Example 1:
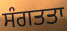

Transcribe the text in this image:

ਸੰਗਤਤਾ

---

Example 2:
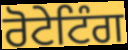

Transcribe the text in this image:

ਰੋਟੇਟਿੰਗ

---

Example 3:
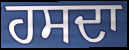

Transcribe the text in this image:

ਹਸਦਾ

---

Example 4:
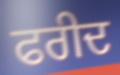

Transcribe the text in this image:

ਫਰੀਦ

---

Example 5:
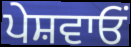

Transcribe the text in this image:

ਪੇਸ਼ਵਾਓਂ